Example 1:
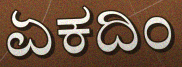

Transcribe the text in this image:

ಏಕದಿಂ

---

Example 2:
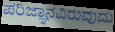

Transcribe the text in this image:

ಪರಿಜ್ಞಾನವಿರುವುದು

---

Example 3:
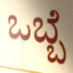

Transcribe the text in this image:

ಒಬ್ಬೆ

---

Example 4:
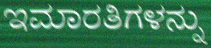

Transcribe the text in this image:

ಇಮಾರತಿಗಳನ್ನು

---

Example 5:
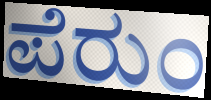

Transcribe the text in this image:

ಪೆರುಂ